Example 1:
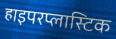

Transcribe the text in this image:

हाइपरप्लास्टिक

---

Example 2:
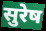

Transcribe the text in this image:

सुरेष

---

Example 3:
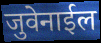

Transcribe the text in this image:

जुवेनाईल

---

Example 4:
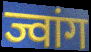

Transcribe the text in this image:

ज्वांग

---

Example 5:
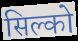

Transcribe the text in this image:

सिल्को